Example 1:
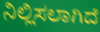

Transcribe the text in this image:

ನಿಲ್ಲಿಸಲಾಗಿದೆ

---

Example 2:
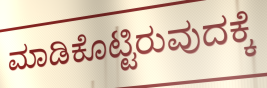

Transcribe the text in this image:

ಮಾಡಿಕೊಟ್ಟಿರುವುದಕ್ಕೆ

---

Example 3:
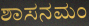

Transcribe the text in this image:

ಶಾಸನಮಂ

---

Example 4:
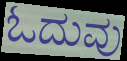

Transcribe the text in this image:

ಓದುವು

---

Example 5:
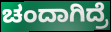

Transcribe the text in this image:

ಚಂದಾಗಿದ್ರೆ